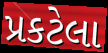
પ્રકટેલા